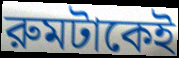
রুমটাকেই